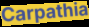
Carpathia